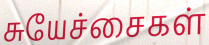
சுயேச்சைகள்